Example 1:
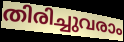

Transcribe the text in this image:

തിരിച്ചുവരാം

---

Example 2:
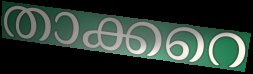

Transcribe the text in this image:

താക്കറെ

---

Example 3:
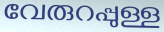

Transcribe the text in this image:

വേരുറപ്പുള്ള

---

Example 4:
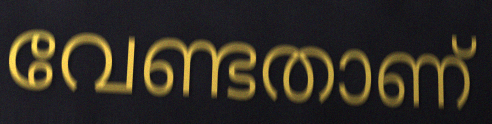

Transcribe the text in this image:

വേണ്ടതാണ്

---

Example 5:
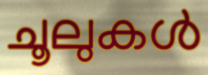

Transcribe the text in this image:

ചൂലുകൾ